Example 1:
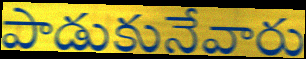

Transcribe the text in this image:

పాడుకునేవారు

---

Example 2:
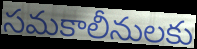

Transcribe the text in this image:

సమకాలీనులకు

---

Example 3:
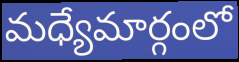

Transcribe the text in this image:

మధ్యేమార్గంలో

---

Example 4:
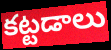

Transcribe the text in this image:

కట్టడాలు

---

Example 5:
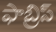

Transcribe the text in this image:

ఫాబ్రిస్